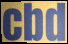
cbd